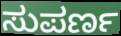
ಸುಪರ್ಣ